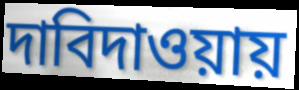
দাবিদাওয়ায়